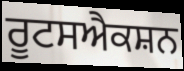
ਰੂਟਸਐਕਸ਼ਨ